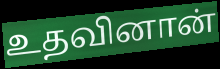
உதவினான்